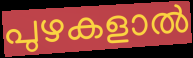
പുഴകളാൽ